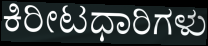
ಕಿರೀಟಧಾರಿಗಳು